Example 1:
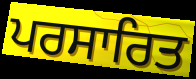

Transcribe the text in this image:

ਪਰਸਾਰਿਤ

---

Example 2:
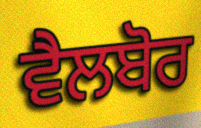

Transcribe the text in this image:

ਵੈਲਬੋਰ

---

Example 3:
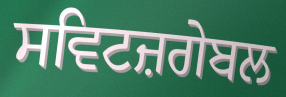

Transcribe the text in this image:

ਸਵਿਟਜ਼ਗੇਬਲ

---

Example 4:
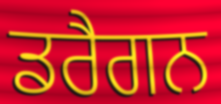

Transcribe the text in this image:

ਡਰੈਗਨ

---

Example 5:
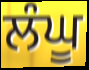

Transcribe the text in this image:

ਲੰਘੂ